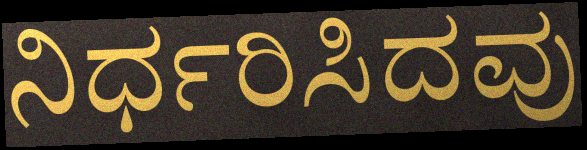
ನಿರ್ಧರಿಸಿದವು